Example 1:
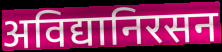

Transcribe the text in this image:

अविद्यानिरसन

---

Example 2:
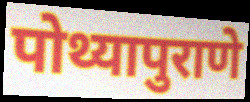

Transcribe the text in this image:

पोथ्यापुराणे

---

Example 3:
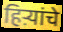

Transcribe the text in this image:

हिऱ्‍यांचे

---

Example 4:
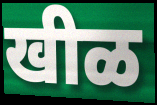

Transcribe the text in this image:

खीळ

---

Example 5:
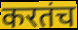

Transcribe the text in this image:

करतंच